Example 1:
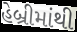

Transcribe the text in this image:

હેબ્રીમાંથી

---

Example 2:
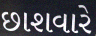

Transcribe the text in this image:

છાશવારે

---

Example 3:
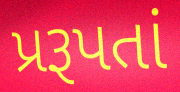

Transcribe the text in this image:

પ્રરૂપતાં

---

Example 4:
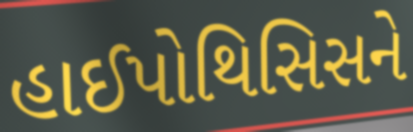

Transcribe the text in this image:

હાઈપોથિસિસને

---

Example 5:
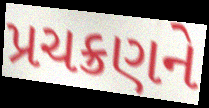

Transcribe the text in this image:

પ્રચક્રણને